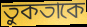
তুকতাকে